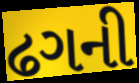
ઢગની